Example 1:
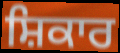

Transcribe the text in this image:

ਸ਼ਿਕਾਰ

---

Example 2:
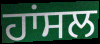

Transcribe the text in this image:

ਹਾਂਸਲ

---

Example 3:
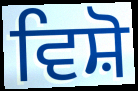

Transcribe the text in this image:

ਵਿਸ਼ੋ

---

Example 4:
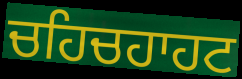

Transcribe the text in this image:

ਚਹਿਚਹਾਹਟ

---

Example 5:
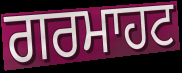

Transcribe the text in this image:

ਗਰਮਾਹਟ